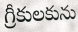
గ్రీకులకును